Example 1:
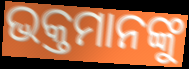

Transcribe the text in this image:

ଭକ୍ତମାନଙ୍କୁ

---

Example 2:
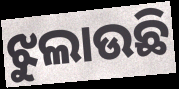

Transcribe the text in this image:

ଝୁଲାଉଛି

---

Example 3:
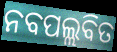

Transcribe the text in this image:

ନବପଲ୍ଲବିତ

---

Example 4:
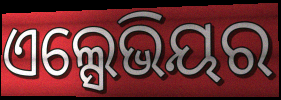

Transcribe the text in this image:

ଏଲ୍ସେଭିୟର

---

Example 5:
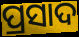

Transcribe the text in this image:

ପ୍ରସାଦ